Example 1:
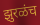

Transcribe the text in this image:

झुरळंच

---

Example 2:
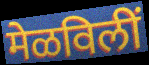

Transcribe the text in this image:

मेळविलीं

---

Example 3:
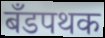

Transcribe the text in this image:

बँडपथक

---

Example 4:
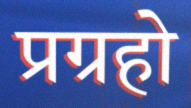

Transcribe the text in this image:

प्रग्रहो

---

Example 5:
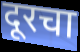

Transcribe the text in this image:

दूरचा